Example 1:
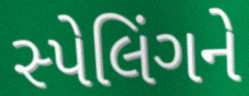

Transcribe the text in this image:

સ્પેલિંગને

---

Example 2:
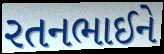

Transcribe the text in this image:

રતનભાઈને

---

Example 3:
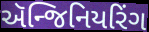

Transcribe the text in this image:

ઍન્જિનિયરિંગ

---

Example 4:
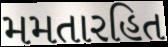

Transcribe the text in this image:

મમતારહિત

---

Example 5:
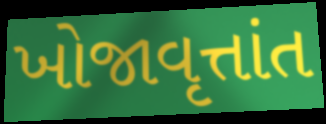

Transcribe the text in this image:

ખોજાવૃત્તાંત